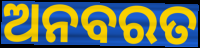
ଅନବରତ